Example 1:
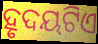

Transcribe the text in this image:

ହୃଦୟଟିଏ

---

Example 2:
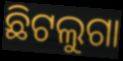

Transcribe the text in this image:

ଛିଟଲୁଗା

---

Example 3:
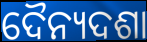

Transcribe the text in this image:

ଦୈନ୍ୟଦଶା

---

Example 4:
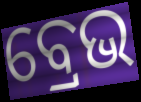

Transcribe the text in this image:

ବ୍ରେଭ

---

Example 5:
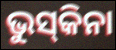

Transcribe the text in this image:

ଭୁସ୍‌କିନା